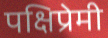
पक्षिप्रेमी